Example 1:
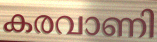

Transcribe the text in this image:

കരവാണി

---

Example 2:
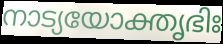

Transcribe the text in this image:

നാട്യയോക്തൃഭിഃ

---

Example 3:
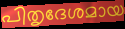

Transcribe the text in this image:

പിതൃദേശമായ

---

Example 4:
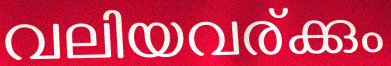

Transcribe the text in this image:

വലിയവര്ക്കും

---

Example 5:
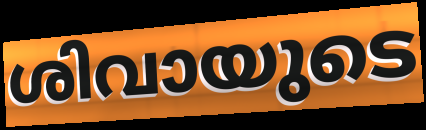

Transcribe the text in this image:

ശിവായുടെ